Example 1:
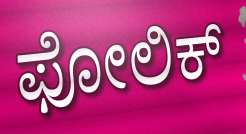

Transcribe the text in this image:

ಫೋಲಿಕ್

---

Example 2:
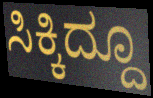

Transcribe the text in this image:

ಸಿಕ್ಕಿದ್ದೂ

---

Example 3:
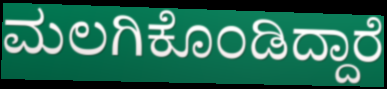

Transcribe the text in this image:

ಮಲಗಿಕೊಂಡಿದ್ದಾರೆ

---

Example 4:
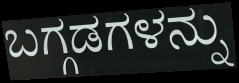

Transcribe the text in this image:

ಬಗ್ಗಡಗಳನ್ನು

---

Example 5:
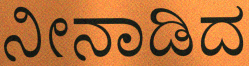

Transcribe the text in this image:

ನೀನಾಡಿದ